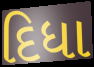
દિધા